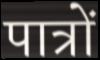
पात्रों